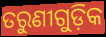
ତରୁଣୀଗୁଡ଼ିକ